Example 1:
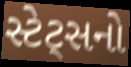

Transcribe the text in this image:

સ્ટેટ્સનો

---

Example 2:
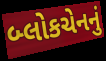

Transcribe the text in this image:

બ્લોકચેનનું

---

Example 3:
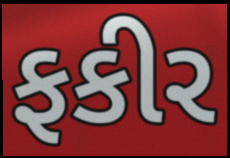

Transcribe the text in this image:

ફકીર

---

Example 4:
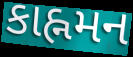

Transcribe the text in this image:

કાહ્નમન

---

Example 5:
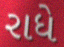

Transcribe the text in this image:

રાધે